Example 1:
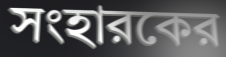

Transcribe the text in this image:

সংহারকের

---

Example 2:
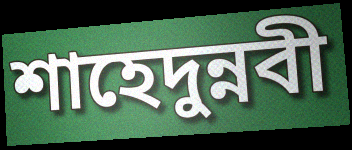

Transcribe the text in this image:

শাহেদুন্নবী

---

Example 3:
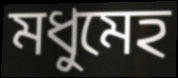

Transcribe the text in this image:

মধুমেহ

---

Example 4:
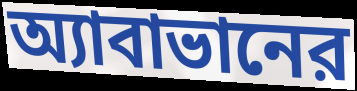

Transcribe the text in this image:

অ্যাবাভানের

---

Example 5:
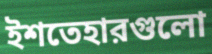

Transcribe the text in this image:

ইশতেহারগুলো